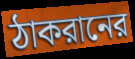
ঠাকরানের